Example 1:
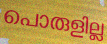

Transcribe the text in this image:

പൊരുളില്ല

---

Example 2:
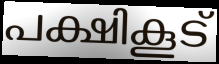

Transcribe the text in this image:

പക്ഷികൂട്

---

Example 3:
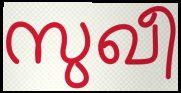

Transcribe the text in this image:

സുഖീ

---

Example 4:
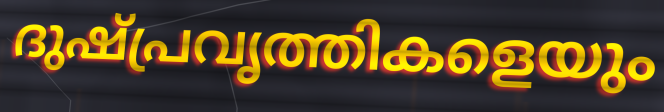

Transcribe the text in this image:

ദുഷ്പ്രവൃത്തികളെയും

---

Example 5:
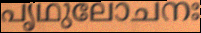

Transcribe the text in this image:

പൃഥുലോചനഃ